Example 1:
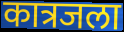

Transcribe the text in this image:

कात्रजला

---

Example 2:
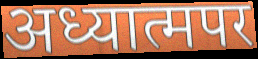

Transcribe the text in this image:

अध्यात्मपर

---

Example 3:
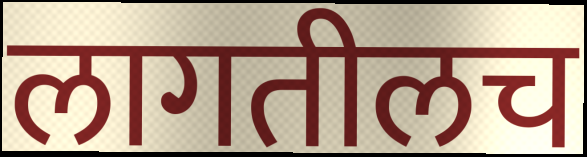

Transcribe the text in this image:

लागतीलच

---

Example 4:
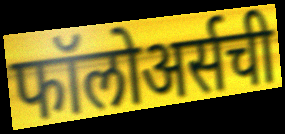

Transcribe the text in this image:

फॉलोअर्सची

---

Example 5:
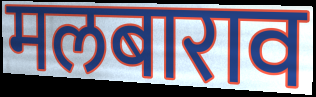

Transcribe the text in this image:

मलबाराव